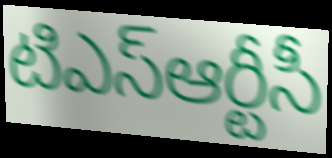
టిఎస్ఆర్టీసీ